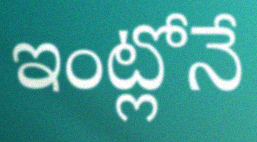
ఇంట్లోనే